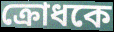
ক্রোধকে